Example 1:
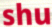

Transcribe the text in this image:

shu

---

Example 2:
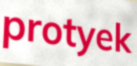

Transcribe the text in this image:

protyek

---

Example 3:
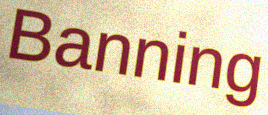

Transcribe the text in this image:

Banning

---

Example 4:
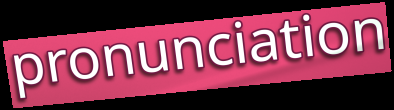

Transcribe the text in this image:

pronunciation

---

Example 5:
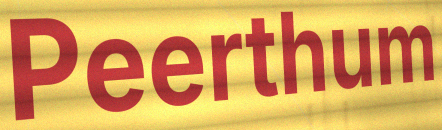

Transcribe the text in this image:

Peerthum